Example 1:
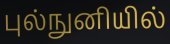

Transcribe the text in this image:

புல்நுனியில்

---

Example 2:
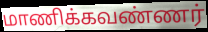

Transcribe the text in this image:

மாணிக்கவண்ணர்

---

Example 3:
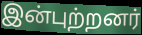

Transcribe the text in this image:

இன்புற்றனர்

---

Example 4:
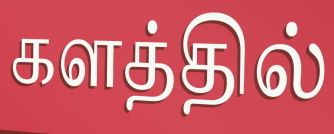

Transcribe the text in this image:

களத்தில்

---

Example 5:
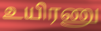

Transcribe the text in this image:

உயிரணு